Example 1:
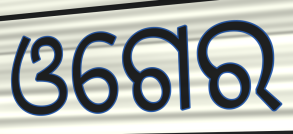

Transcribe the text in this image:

ଓଗେର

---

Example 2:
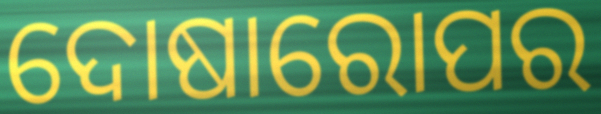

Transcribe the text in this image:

ଦୋଷାରୋପର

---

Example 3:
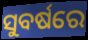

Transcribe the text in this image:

ସୁବର୍ଷରେ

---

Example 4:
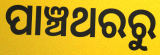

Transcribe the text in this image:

ପାଞ୍ଚଥରରୁ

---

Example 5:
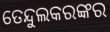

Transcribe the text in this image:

ତେନ୍ଦୁଲକରଙ୍କର